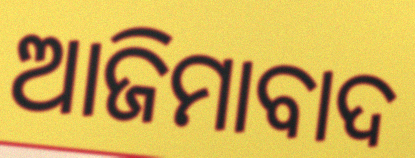
ଆଜିମାବାଦ